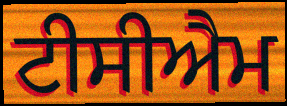
ਟੀਸੀਐਮ